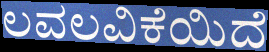
ಲವಲವಿಕೆಯಿದೆ